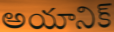
అయానిక్